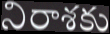
నిరాశకు